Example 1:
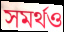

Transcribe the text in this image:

সমর্থও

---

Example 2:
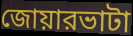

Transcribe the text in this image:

জোয়ারভাটা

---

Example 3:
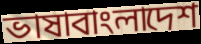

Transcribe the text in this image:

ভাষাবাংলাদেশ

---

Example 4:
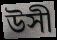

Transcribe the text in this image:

উসী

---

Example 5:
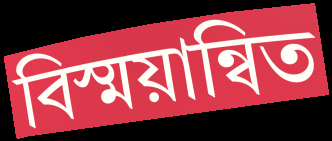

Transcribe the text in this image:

বিস্ময়ান্বিত